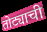
तोट्याची